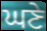
ਘਣੇ